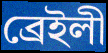
ব্রেইলী